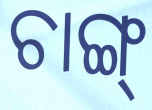
ଚାଙ୍ଗ୍